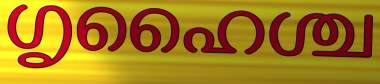
ഗൃഹൈശ്ച